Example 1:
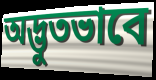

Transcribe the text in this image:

অদ্ভুতভাবে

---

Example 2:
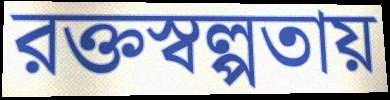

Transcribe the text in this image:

রক্তস্বল্পতায়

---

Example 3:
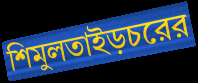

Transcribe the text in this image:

শিমুলতাইড়চরের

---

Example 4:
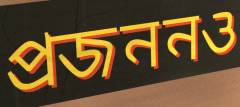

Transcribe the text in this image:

প্রজননও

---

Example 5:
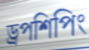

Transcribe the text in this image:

ড্রপশিপিং